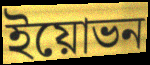
ইয়োভন